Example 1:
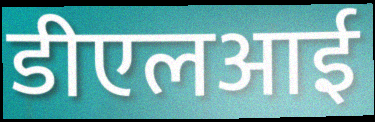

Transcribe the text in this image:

डीएलआई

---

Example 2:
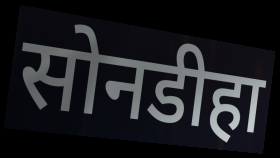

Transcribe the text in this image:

सोनडीहा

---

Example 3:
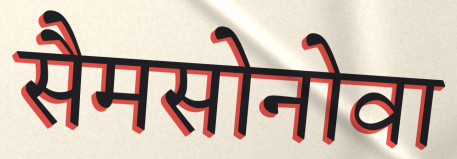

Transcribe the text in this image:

सैमसोनोवा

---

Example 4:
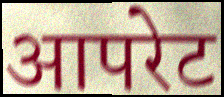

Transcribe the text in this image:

आपरेट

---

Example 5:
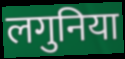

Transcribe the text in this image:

लगुनिया